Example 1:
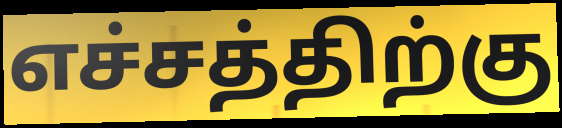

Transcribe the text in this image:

எச்சத்திற்கு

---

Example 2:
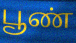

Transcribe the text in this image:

பூண்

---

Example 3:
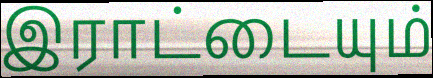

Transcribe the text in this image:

இராட்டையும்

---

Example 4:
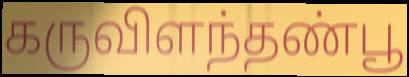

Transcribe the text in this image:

கருவிளந்தண்பூ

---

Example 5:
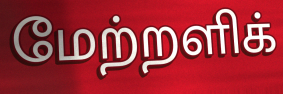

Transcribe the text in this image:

மேற்றளிக்